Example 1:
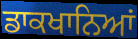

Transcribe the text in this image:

ਡਾਕਖਾਨਿਆਂ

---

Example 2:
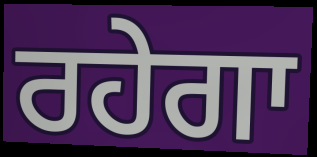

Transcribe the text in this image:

ਰਹੇਗਾ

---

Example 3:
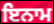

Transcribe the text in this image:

ਇਨਾਮ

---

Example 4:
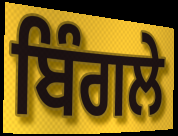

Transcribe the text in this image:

ਬਿੰਗਲੇ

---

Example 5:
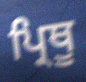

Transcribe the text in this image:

ਪ੍ਰਿਥੂ